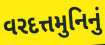
વરદત્તમુનિનું